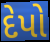
દેપો